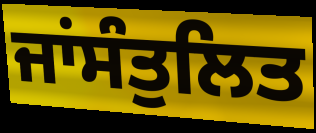
ਜਾਂਸੰਤੁਲਿਤ